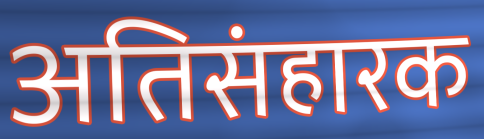
अतिसंहारक